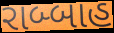
રાબ્બાહ